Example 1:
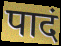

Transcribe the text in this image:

पादं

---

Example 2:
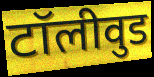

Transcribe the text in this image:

टॉलीवुड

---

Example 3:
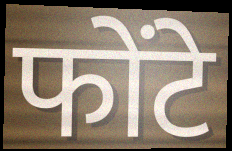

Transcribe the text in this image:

फोंटे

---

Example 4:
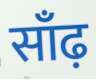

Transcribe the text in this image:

साँढ़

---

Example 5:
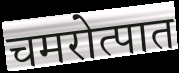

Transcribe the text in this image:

चमरोत्पात